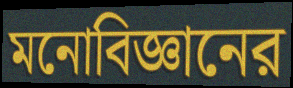
মনোবিজ্ঞানের